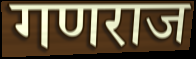
गणराज